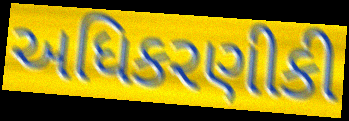
અધિકરણીકી